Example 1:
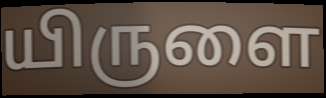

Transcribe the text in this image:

யிருளை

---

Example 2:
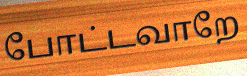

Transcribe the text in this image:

போட்டவாறே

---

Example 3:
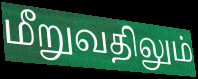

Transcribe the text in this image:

மீறுவதிலும்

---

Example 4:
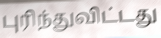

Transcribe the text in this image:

புரிந்துவிட்டது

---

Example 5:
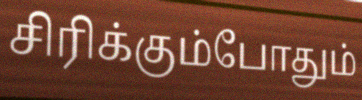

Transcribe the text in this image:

சிரிக்கும்போதும்